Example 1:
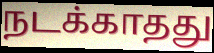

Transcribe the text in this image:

நடக்காதது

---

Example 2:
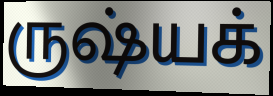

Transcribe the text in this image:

ருஷ்யக்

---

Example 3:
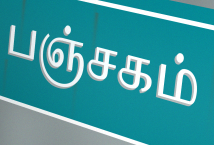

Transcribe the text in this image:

பஞ்சகம்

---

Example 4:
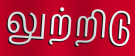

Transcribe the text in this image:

லுற்றிடு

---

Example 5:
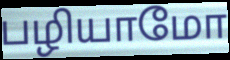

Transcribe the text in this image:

பழியாமோ